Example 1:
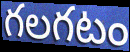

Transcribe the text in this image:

గలగటం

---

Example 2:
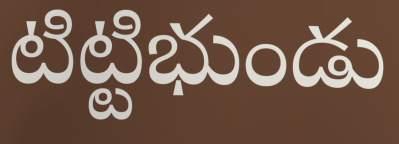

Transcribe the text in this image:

టిట్టిభుండు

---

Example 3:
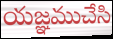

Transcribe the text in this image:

యజ్ఞముచేసి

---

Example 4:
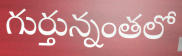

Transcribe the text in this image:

గుర్తున్నంతలో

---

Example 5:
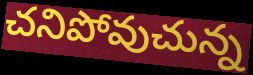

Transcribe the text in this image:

చనిపోవుచున్న